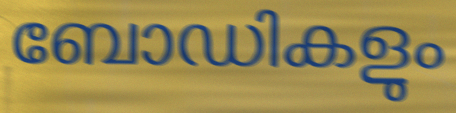
ബോഡികളും